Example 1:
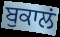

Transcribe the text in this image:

ਬੁਕਾਲਂ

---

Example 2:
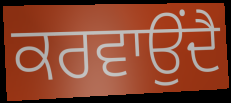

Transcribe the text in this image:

ਕਰਵਾਉਂਦੈ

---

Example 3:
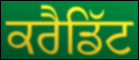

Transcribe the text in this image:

ਕਰੈਡਿੱਟ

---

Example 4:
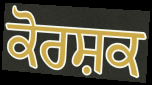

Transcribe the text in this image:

ਕੋਰਸ਼ਕ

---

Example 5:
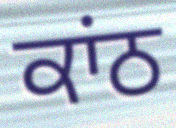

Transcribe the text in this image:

ਕਾਂਠ